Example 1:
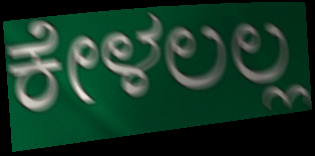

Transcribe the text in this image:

ಕೇಳಲಲ್ಲ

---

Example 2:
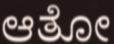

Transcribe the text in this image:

ಆತೋ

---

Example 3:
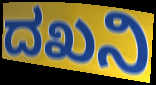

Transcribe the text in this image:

ದಖನಿ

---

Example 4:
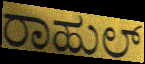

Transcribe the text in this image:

ರಾಹುಲ್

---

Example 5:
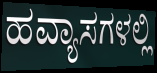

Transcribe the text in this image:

ಹವ್ಯಾಸಗಳಲ್ಲಿ